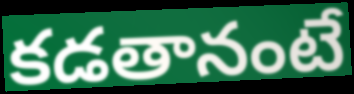
కడతానంటే